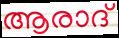
ആരാദ്